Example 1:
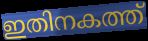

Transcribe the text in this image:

ഇതിനകത്ത്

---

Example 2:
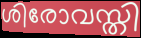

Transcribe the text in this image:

ശിരോവസ്തി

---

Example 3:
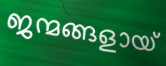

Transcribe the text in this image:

ജന്മങ്ങളായ്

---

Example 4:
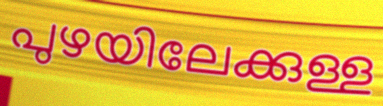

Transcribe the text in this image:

പുഴയിലേക്കുള്ള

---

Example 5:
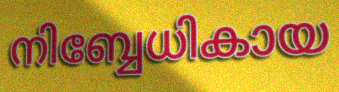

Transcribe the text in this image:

നിബ്ബേധികായ